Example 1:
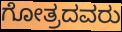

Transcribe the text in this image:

ಗೋತ್ರದವರು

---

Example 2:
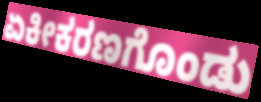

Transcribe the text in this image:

ಏಕೀಕರಣಗೊಂಡು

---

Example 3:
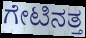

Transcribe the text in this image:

ಗೇಟಿನತ್ತ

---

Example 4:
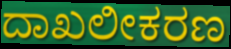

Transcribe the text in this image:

ದಾಖಲೀಕರಣ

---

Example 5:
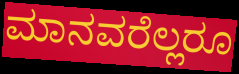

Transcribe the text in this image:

ಮಾನವರೆಲ್ಲರೂ